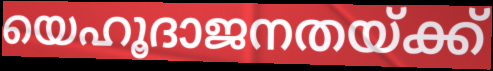
യെഹൂദാജനതയ്ക്ക്